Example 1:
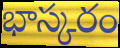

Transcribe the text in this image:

భాస్కరం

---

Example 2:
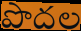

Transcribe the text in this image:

పొదల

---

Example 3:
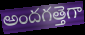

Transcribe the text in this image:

అందగత్తెగా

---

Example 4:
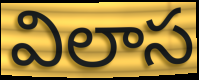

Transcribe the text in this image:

విలాస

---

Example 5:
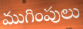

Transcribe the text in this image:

ముగింపులు